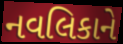
નવલિકાને